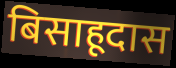
बिसाहूदास